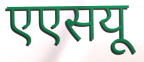
एएसयू